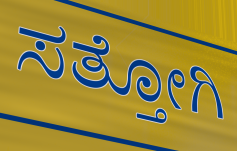
ಸತ್ತೋಗಿ